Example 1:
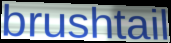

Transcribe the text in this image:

brushtail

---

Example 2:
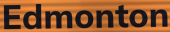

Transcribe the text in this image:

Edmonton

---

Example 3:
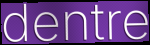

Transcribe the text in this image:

dentre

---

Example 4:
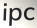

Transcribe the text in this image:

ipc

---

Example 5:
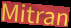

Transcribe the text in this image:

Mitran